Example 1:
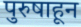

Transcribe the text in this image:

पुरुषाहून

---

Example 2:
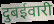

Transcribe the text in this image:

दुबईवारी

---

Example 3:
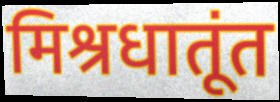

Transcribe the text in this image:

मिश्रधातूंत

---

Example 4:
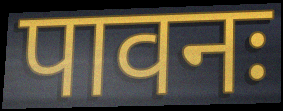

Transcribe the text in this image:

पावनः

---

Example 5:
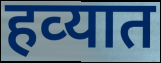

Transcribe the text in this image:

हव्‍यात